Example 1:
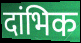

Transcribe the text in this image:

दांभिक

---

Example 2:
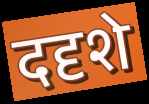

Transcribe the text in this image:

ददृशे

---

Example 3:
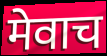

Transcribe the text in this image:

मेवाच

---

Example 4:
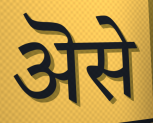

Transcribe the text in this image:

ऄसे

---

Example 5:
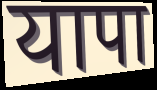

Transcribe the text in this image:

यापा